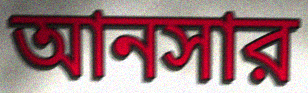
আনসার